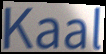
Kaal